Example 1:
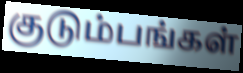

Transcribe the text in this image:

குடும்பங்கள்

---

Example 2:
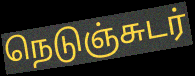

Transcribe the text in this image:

நெடுஞ்சுடர்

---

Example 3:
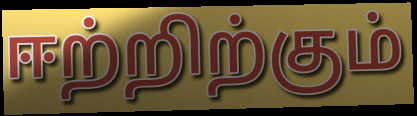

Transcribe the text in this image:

ஈற்றிற்கும்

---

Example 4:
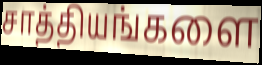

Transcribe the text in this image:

சாத்தியங்களை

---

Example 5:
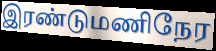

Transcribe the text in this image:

இரண்டுமணிநேர